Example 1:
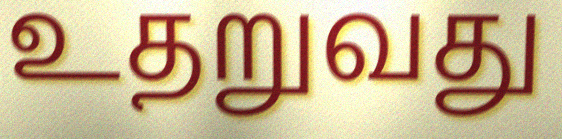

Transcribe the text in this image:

உதறுவது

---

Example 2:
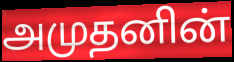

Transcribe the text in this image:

அமுதனின்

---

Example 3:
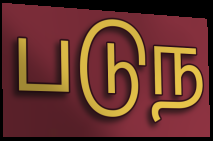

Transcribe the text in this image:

படுந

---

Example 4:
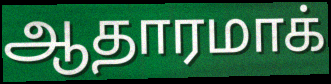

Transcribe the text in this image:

ஆதாரமாக்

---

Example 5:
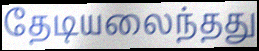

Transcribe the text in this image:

தேடியலைந்தது